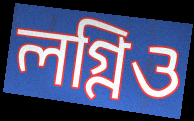
লগ্নিও